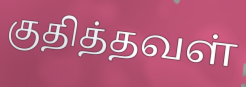
குதித்தவள்